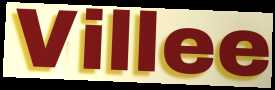
Villee